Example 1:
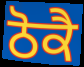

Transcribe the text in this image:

ਠੋਕੈ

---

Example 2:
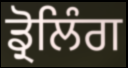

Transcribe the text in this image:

ਡ੍ਰੋਲਿੰਗ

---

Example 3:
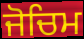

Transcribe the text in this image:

ਜੋਚਿਮ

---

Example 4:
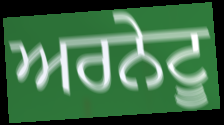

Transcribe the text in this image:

ਅਰਨੇਟੂ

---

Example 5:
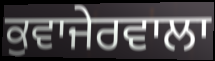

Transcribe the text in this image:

ਕੁਵਾਜੇਰਵਾਲਾ